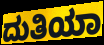
ದುತಿಯಾ